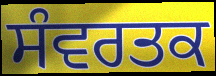
ਸੰਵਰਤਕ